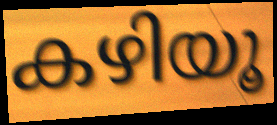
കഴിയൂ